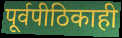
पूर्वपीठिकाही